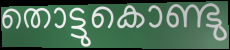
തൊട്ടുകൊണ്ടു